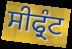
ਸੀਫ੍ਰੰਟ